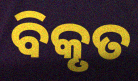
ବିକୃତ